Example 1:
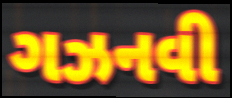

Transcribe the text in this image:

ગઝનવી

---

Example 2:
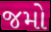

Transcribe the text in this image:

જમો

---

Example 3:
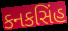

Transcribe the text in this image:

કનકસિંહ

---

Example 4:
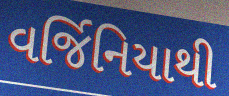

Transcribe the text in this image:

વર્જિનિયાથી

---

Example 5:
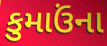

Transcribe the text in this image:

કુમાઉંના